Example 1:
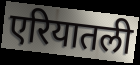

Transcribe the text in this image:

एरियातली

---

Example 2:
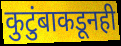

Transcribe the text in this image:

कुटुंबाकडूनही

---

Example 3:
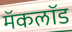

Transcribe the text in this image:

मॅकलॉड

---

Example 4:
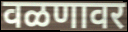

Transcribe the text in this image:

वळणावर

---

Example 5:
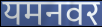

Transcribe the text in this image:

यमनवर